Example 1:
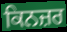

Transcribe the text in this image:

ਕਿਨਜ਼ਰ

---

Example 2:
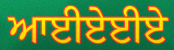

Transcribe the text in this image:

ਆਈਏਈਏ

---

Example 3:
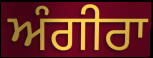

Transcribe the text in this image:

ਅੰਗੀਰਾ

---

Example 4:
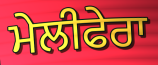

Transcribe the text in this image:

ਮੇਲੀਫੇਰਾ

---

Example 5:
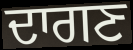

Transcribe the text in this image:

ਦਾਗਣ